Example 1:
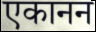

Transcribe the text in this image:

एकानन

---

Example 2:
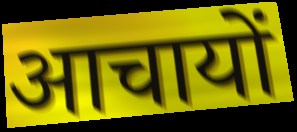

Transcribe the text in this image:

आचायों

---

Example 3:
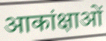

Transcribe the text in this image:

आकांक्षाओं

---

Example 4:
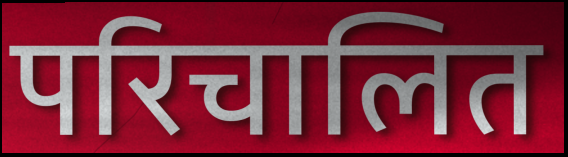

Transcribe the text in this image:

परिचालित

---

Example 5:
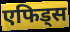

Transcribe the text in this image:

एफिड्स